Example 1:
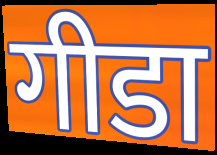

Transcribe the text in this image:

गीडा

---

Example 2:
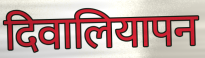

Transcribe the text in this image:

दिवालियापन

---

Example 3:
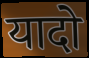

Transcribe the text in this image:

यादो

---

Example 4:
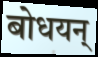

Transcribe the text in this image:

बोधयन्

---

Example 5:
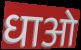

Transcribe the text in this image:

धाओ